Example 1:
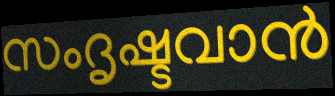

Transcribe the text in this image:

സംദൃഷ്ടവാൻ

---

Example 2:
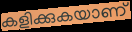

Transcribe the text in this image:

കളിക്കുകയാണ്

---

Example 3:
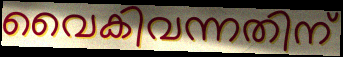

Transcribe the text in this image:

വൈകിവന്നതിന്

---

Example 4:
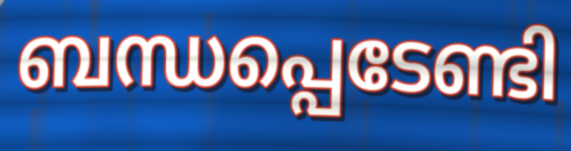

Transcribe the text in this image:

ബന്ധപ്പെടേണ്ടി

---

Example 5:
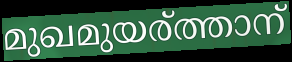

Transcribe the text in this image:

മുഖമുയര്ത്താന്